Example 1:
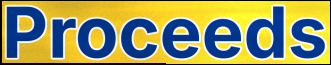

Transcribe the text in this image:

Proceeds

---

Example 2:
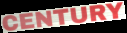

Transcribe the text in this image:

CENTURY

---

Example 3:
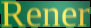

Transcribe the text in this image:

Rener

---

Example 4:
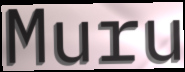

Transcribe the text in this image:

Muru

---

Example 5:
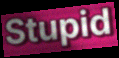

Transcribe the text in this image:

Stupid